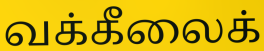
வக்கீலைக்